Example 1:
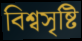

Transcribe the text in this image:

বিশ্বসৃষ্টি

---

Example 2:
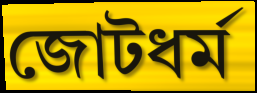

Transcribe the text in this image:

জোটধর্ম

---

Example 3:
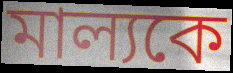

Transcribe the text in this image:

মাল্যকে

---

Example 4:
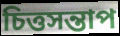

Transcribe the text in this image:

চিত্তসন্তাপ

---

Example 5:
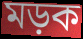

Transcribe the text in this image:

মড়ক